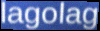
lagolag